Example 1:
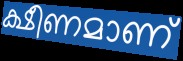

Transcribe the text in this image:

ക്ഷീണമാണ്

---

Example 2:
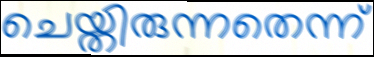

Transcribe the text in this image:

ചെയ്തിരുന്നതെന്ന്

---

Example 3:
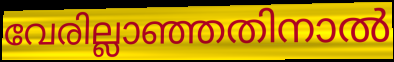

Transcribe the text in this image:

വേരില്ലാഞ്ഞതിനാൽ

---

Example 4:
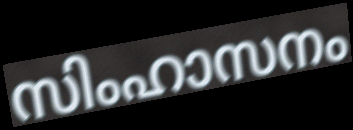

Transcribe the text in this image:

സിംഹാസനം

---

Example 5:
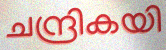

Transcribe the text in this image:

ചന്ദ്രികയി